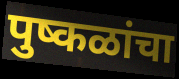
पुष्कळांचा